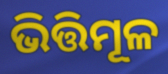
ଭିତ୍ତିମୂଳ